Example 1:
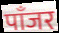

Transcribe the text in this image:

पाँजर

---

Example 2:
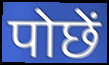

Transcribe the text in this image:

पोछें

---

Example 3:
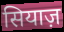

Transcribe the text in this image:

सियाज़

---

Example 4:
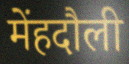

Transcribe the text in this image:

मेंहदौली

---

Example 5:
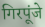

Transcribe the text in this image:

गिरपूंजे